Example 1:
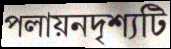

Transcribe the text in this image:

পলায়নদৃশ্যটি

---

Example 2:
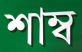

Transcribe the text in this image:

শাম্ব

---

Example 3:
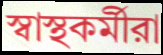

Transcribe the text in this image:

স্বাস্থকর্মীরা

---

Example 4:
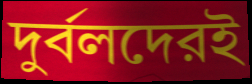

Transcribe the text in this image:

দুর্বলদেরই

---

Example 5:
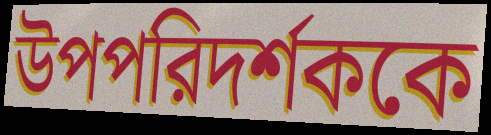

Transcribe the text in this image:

উপপরিদর্শককে